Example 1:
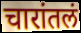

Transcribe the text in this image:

चारांतलं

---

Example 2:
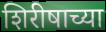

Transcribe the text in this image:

शिरीषाच्या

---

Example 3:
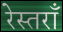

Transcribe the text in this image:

रेस्तराँ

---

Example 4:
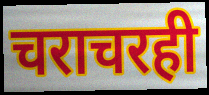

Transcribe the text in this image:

चराचरही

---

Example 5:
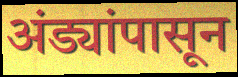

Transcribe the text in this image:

अंड्यांपासून